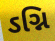
ઽગ્નિ